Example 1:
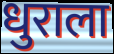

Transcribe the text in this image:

धुराला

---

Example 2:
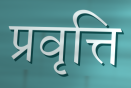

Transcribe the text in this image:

प्रवृत्ति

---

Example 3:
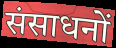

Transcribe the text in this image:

संसाधनों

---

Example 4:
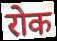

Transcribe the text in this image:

रोक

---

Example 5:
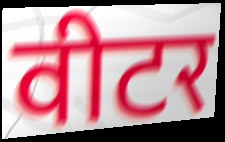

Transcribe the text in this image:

वीटर